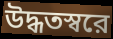
উদ্ধতস্বরে